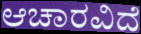
ಆಚಾರವಿದೆ